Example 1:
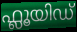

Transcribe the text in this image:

ഫ്ലൂയിഡ്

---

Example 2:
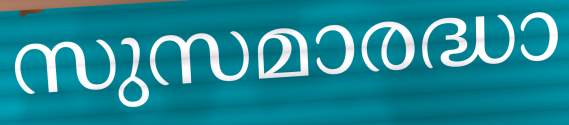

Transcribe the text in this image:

സുസമാരദ്ധാ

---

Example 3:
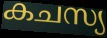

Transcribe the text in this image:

കചസ്യ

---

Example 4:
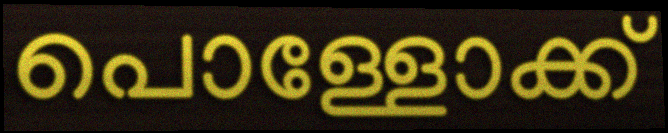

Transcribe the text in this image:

പൊള്ളോക്ക്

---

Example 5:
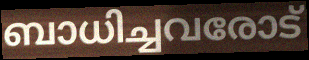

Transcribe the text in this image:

ബാധിച്ചവരോട്